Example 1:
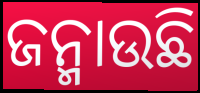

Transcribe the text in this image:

ଜନ୍ମାଉଛି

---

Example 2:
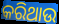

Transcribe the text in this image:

କରିଥାଉ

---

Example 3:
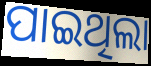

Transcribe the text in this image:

ପାଇଥିଲା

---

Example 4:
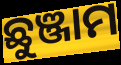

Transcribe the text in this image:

ଛୁଞ୍ଜାମ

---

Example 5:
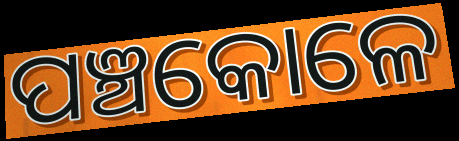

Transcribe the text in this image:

ପଞ୍ଚକୋଳେ